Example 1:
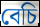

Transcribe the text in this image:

বেচি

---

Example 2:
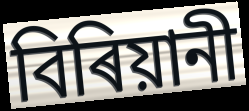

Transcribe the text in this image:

বিৰিয়ানী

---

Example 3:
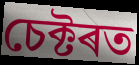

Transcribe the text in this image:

চেক্টৰত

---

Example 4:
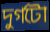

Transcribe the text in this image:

দুৰ্গটো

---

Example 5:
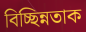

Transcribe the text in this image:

বিচ্ছিন্নতাক